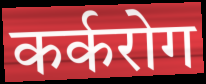
कर्करोग